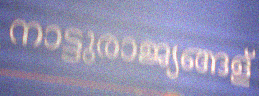
നാട്ടുരാജ്യങ്ങള്